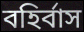
বহির্বাস